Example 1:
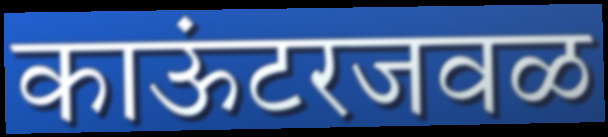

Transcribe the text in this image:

काऊंटरजवळ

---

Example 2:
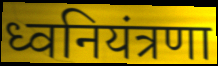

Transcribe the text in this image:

ध्वनियंत्रणा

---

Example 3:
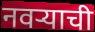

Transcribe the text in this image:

नवऱ्याची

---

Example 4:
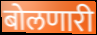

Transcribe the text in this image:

बोलणारी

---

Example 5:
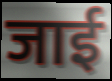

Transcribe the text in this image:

जाई